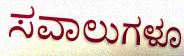
ಸವಾಲುಗಳೂ